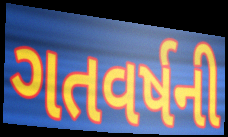
ગતવર્ષની